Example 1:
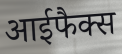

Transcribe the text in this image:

आईफैक्स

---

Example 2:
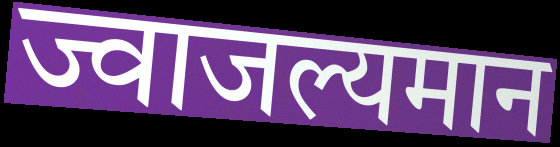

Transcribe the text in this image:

ज्वाजल्यमान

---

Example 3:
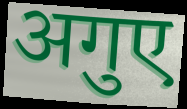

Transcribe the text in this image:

अगुए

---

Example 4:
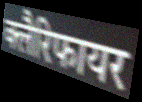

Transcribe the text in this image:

क्लैरिफायर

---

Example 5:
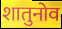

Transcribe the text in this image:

शातुनोव